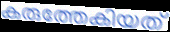
കരുത്തേകിയത്